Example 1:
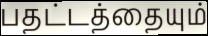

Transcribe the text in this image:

பதட்டத்தையும்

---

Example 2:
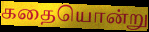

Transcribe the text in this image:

கதையொன்று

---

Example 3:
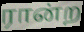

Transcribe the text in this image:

ரான்ற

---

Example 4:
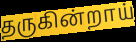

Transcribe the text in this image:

தருகின்றாய்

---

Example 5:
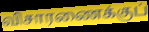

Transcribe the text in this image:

விசாரணைக்குப்